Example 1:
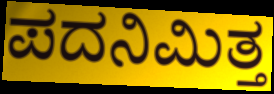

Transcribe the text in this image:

ಪದನಿಮಿತ್ತ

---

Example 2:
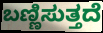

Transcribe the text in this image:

ಬಣ್ಣಿಸುತ್ತದೆ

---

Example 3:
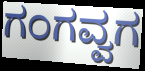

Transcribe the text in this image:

ಗಂಗವ್ವಗ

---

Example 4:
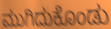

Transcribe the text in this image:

ಮುಗಿದುಕೊಂಡು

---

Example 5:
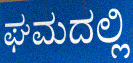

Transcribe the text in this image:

ಘಮದಲ್ಲಿ